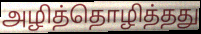
அழித்தொழித்தது